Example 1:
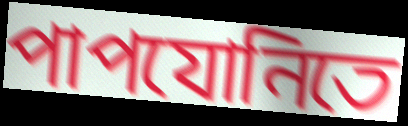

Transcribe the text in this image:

পাপযোনিতে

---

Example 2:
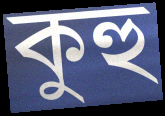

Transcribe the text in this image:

কুহু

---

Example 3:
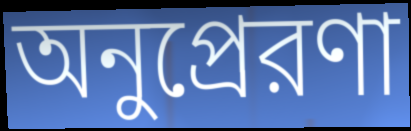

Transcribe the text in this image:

অনুপ্রেরণা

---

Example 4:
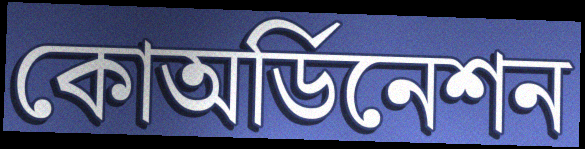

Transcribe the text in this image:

কোঅর্ডিনেশন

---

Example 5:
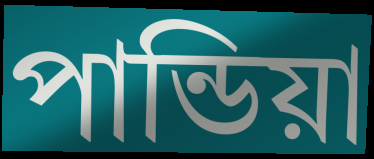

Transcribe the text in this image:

পান্ডিয়া